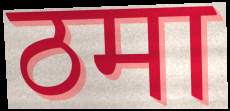
ठमा